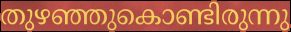
തുഴഞ്ഞുകൊണ്ടിരുന്നു